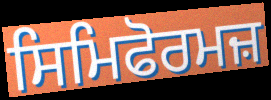
ਸਿਮਿਫੋਰਮਜ਼